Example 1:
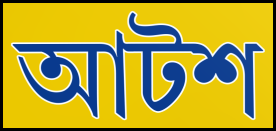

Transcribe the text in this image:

আটশ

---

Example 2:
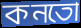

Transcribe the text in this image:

কনতো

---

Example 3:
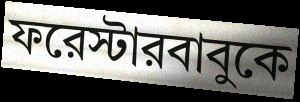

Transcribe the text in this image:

ফরেস্টারবাবুকে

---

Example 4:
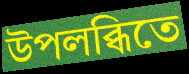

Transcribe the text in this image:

উপলব্ধিতে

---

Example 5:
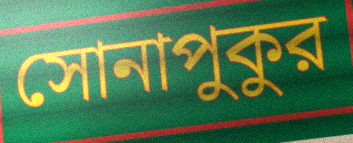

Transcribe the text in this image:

সোনাপুকুর